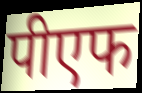
पीएफ